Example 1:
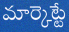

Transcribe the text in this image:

మార్కెట్టే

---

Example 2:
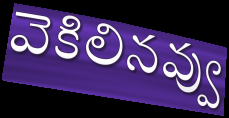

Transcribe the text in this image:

వెకిలినవ్వు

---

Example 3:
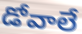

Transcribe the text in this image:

డోవాలే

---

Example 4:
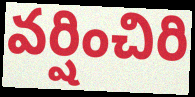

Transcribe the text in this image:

వర్షించిరి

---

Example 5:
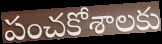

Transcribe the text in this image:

పంచకోశాలకు